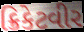
ક્રિકેટવીર